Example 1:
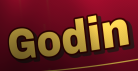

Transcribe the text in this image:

Godin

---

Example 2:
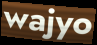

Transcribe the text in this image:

wajyo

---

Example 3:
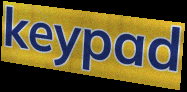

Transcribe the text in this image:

keypad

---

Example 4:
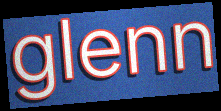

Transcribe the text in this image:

glenn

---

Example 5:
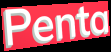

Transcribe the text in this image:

Penta